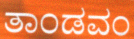
ತಾಂಡವಂ